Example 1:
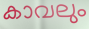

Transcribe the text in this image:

കാവലും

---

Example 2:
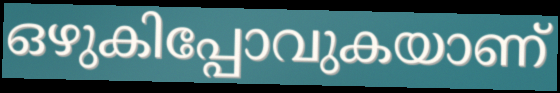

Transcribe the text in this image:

ഒഴുകിപ്പോവുകയാണ്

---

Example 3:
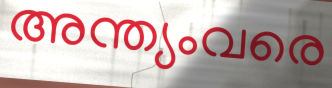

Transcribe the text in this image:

അന്ത്യംവരെ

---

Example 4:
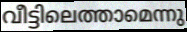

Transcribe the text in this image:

വീട്ടിലെത്താമെന്നു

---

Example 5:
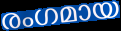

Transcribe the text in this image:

രംഗമായ